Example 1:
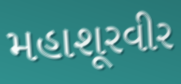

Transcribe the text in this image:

મહાશૂરવીર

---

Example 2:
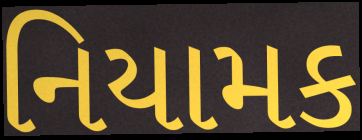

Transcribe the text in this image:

નિયામક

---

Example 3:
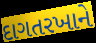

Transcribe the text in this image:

દાગતરખાને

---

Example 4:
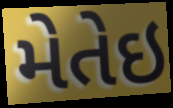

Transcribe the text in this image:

મેતેઇ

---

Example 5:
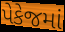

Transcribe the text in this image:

પેકેજમાં